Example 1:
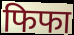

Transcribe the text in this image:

फिफा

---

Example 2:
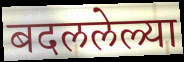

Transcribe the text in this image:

बदललेल्या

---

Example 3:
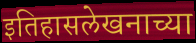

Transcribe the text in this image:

इतिहासलेखनाच्या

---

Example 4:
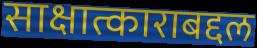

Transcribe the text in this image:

साक्षात्काराबद्दल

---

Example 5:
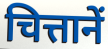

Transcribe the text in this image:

चित्तानें